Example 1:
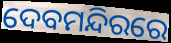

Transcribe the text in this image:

ଦେବମନ୍ଦିରରେ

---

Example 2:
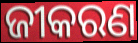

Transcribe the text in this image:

ଜୀକରଣ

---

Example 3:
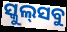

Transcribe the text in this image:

ସ୍କୁଲ୍‍ସବୁ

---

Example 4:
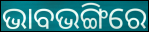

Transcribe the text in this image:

ଭାବଭଙ୍ଗିରେ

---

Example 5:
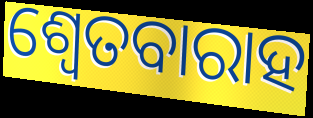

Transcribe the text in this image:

ଶ୍ଵେତବାରାହ